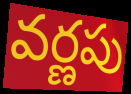
వర్ణపు